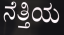
ನೆತ್ತಿಯ